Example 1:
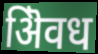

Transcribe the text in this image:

ऄिवध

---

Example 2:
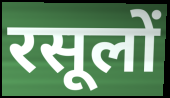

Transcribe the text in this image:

रसूलों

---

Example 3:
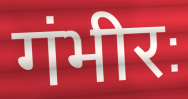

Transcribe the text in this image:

गंभीरः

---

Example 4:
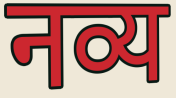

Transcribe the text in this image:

नव्य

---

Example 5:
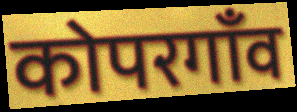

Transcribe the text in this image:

कोपरगाँव